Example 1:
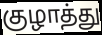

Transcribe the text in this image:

குழாத்து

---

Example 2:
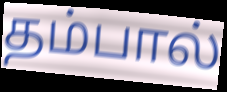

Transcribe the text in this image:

தம்பால்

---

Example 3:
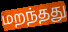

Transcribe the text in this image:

மறந்தது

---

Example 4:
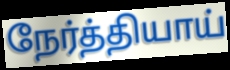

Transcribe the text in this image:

நேர்த்தியாய்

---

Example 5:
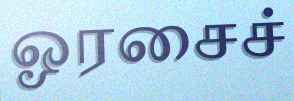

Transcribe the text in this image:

ஓரசைச்